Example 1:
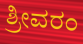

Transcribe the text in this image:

ಶ್ರೀವರಂ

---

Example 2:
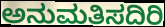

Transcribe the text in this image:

ಅನುಮತಿಸದಿರಿ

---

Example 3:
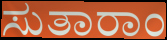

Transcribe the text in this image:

ಸುತಾರಾಂ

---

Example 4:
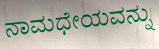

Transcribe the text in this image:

ನಾಮಧೇಯವನ್ನು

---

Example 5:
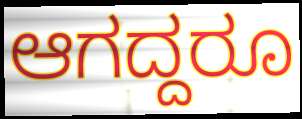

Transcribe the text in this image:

ಆಗದ್ದರೂ